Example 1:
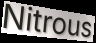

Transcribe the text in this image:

Nitrous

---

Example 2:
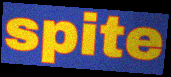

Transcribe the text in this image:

spite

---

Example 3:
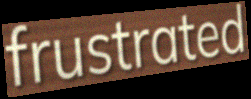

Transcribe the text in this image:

frustrated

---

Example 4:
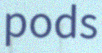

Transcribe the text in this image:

pods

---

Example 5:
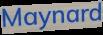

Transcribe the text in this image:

Maynard